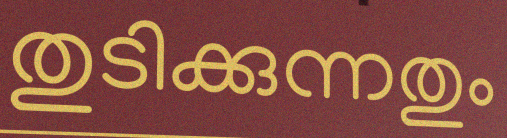
തുടിക്കുന്നതും